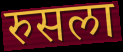
रुसला